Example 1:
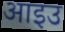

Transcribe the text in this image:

आइउ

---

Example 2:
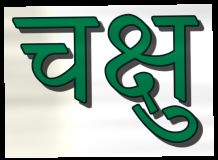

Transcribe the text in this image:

चक्षु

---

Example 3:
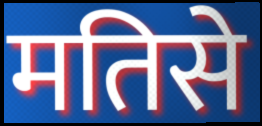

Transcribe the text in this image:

मतिसे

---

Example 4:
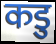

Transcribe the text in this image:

कडु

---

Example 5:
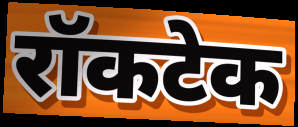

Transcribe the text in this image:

रॉकटेक